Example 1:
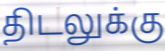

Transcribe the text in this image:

திடலுக்கு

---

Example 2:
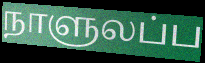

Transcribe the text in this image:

நாளுலப்ப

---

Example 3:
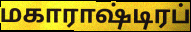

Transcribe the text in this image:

மகாராஷ்டிரப்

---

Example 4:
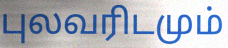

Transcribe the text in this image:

புலவரிடமும்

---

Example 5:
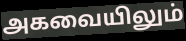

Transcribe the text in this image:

அகவையிலும்